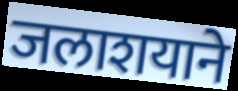
जलाशयाने